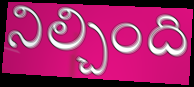
నిల్చింది